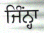
ਜਿੰਂਨ੍ਹਾ